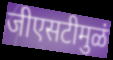
जीएसटीमुळं